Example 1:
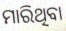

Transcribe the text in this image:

ମାରିଥିବା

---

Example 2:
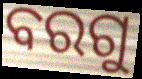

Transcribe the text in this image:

ବରଗୁ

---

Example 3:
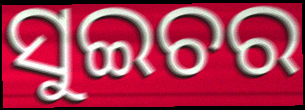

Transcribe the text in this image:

ସୁଇଚର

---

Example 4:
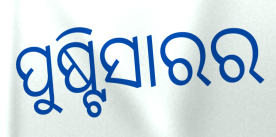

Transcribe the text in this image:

ପୁଷ୍ଟିସାରର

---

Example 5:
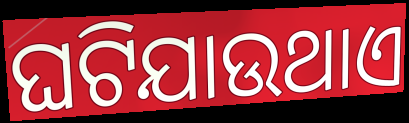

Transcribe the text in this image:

ଘଟିଯାଉଥାଏ